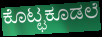
ಕೊಟ್ಟಕೂಡಲೆ